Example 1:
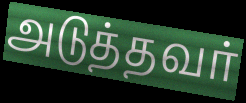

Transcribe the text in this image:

அடுத்தவர்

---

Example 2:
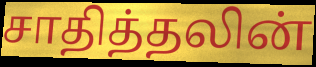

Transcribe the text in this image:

சாதித்தலின்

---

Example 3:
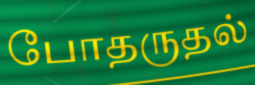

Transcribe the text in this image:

போதருதல்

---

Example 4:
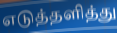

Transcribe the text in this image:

எடுத்தளித்து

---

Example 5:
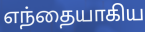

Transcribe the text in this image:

எந்தையாகிய